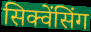
सिक्वेंसिंग